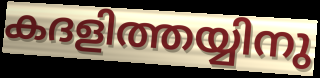
കദളിത്തയ്യിനു